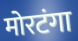
मोरटंगा